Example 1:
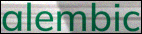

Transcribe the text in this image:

alembic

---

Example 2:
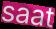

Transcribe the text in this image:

saat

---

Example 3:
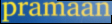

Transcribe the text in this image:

pramaan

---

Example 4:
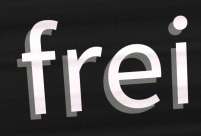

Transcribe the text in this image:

frei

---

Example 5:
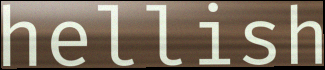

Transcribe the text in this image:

hellish